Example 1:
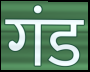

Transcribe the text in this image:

गंड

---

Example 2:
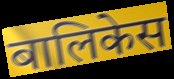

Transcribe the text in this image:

बालिकेस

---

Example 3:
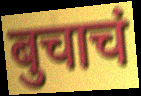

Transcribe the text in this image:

बुचाचं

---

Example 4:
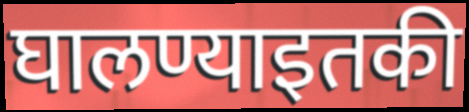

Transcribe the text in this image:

घालण्याइतकी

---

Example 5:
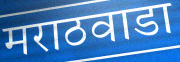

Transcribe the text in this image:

मराठवाडा